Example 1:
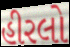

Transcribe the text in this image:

હીરલો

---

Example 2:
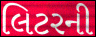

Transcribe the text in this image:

લિટરની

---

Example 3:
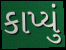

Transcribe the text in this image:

કાપ્યું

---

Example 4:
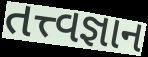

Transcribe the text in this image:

તત્ત્વજ્ઞાન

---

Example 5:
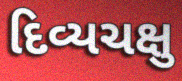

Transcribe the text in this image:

દિવ્યચક્ષુ